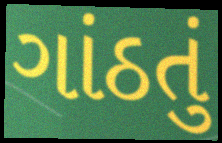
ગાંઠતું